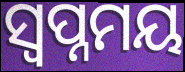
ସ୍ଵପ୍ନମୟ